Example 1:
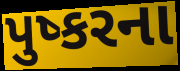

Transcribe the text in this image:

પુષ્કરના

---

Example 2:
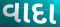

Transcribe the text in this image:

વાદા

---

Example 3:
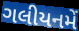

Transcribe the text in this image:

ગલીયનમેં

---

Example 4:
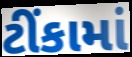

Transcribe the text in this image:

ટીંકામાં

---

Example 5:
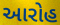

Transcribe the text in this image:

આરોહ